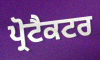
ਪ੍ਰੋਟੈਕਟਰ